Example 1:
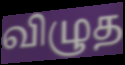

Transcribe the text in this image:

விழுத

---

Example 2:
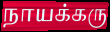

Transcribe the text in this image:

நாயக்கரு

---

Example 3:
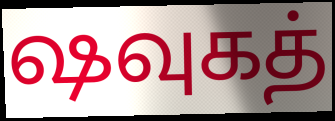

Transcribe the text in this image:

ஷவுகத்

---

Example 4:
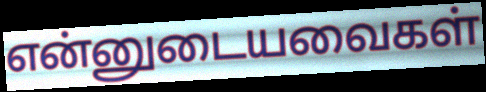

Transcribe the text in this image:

என்னுடையவைகள்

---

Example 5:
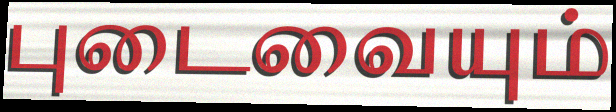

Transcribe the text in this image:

புடைவையும்